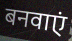
बनवाएं